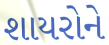
શાયરોને